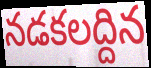
నడకలద్దిన